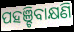
ପହଞ୍ଚିବାକ୍ଷଣି